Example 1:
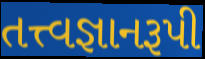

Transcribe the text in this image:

તત્ત્વજ્ઞાનરૂપી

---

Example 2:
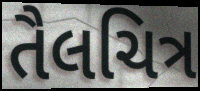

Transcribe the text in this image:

તૈલચિત્ર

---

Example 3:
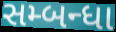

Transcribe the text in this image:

સમ્બન્ધા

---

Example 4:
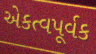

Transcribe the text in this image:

એકત્વપૂર્વક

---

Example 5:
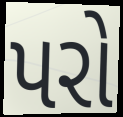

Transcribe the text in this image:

પરો